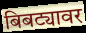
बिबट्यावर